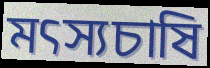
মৎস্যচাষি